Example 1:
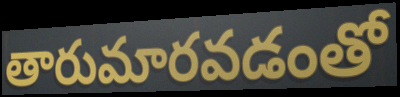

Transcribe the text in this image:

తారుమారవడంతో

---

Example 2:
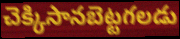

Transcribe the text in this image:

చెక్కిసానబెట్టగలడు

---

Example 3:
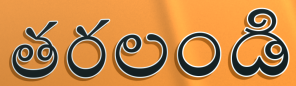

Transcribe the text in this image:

తరలండి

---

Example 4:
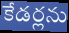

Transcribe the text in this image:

కేడర్లను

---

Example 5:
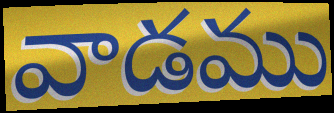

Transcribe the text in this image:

వాడము